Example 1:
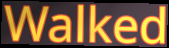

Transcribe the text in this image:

Walked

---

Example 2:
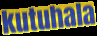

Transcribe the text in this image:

kutuhala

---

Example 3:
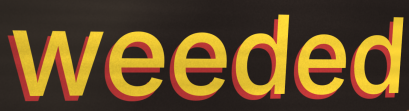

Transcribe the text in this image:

weeded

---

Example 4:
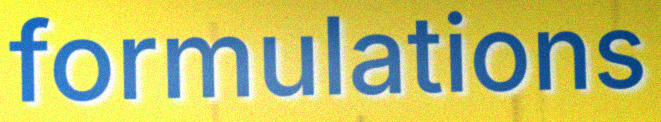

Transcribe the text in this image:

formulations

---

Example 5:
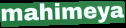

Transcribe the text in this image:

mahimeya